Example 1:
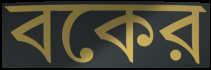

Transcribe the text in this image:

বকের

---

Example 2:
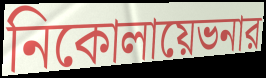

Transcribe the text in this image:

নিকোলায়েভনার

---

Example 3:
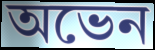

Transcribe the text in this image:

অভেন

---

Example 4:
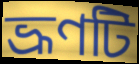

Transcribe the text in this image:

ভ্রূণটি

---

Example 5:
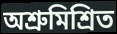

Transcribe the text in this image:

অশ্রুমিশ্রিত